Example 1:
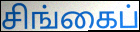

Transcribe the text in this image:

சிங்கைப்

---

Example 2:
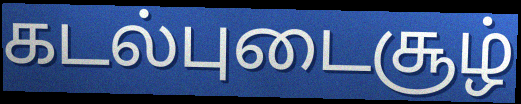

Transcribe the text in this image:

கடல்புடைசூழ்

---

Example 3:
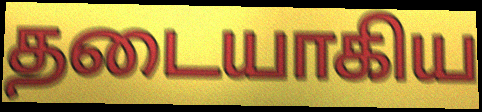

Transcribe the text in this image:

தடையாகிய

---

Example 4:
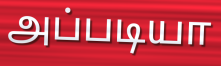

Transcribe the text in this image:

அப்படியா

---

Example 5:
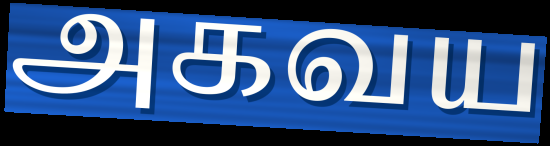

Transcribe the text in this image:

அகவய